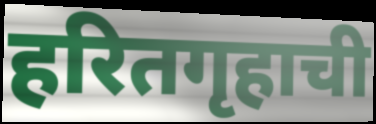
हरितगृहाची